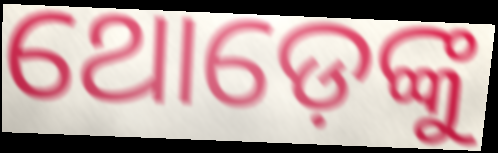
ଥୋଡ଼େଙ୍କୁ